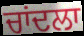
ਚਾਂਦਲਾ